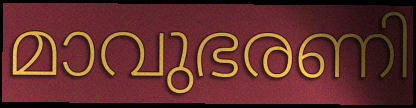
മാവുഭരണി